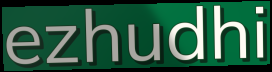
ezhudhi